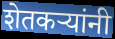
शेतकर्‍यांनी